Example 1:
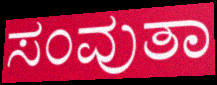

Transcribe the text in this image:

ಸಂವುತಾ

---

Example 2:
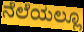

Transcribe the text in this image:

ನೆಲೆಯಲ್ಲೂ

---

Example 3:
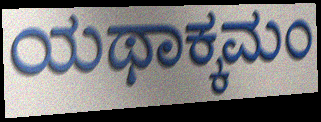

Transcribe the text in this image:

ಯಥಾಕ್ಕಮಂ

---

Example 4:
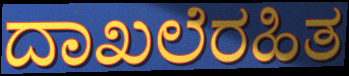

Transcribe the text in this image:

ದಾಖಲೆರಹಿತ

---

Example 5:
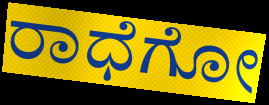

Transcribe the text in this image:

ರಾಧೆಗೋ